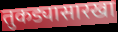
तुकड्यासारखा